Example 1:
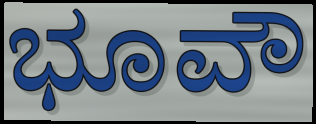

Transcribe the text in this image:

ಭೂವೌ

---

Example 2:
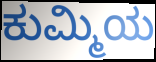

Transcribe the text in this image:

ಕುಮ್ಮಿಯ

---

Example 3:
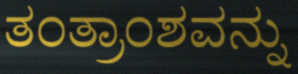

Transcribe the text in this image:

ತಂತ್ರಾಂಶವನ್ನು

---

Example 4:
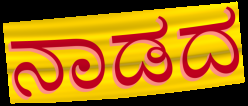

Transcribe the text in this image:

ನಾಡದ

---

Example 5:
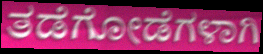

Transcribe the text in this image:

ತಡೆಗೋಡೆಗಳಾಗಿ